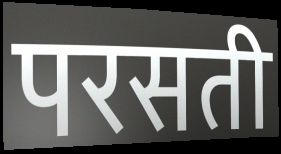
परसती